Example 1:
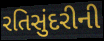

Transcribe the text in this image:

રતિસુંદરીની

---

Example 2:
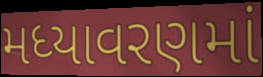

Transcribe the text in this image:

મધ્યાવરણમાં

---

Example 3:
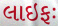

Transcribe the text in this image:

લાઇફઃ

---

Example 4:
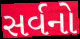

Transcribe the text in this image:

સર્વનો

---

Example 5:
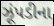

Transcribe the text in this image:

ઝૂંપડીના